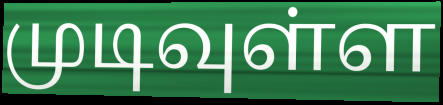
முடிவுள்ள